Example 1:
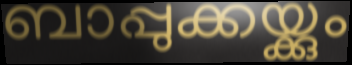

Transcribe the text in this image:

ബാപ്പുക്കയ്ക്കും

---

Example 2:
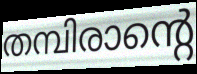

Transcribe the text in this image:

തമ്പിരാന്റെ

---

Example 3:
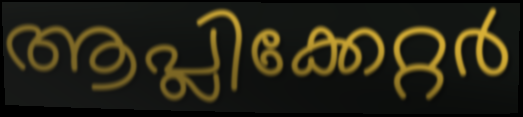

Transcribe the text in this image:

ആപ്ലിക്കേറ്റർ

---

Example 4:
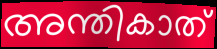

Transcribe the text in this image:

അന്തികാത്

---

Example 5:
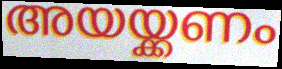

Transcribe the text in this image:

അയയ്ക്കണം